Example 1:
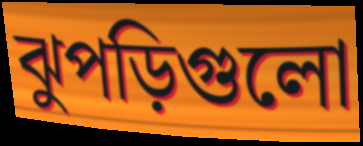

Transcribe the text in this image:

ঝুপড়িগুলো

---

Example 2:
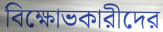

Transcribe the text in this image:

বিক্ষোভকারীদের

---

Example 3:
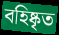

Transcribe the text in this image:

বহিষ্কৃত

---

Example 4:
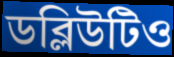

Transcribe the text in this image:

ডব্লিউটিও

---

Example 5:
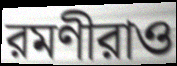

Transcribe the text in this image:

রমণীরাও